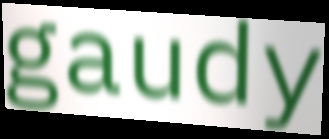
gaudy